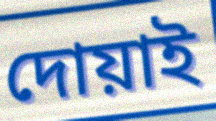
দোয়াই